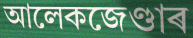
আলেকজেণ্ডাৰ